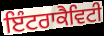
ਇੰਟਰਾਕੈਵਿਟੀ